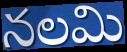
నలమి